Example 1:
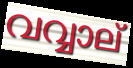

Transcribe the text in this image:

വവ്വാല്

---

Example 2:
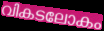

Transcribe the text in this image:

വികടലോകം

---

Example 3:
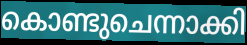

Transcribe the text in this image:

കൊണ്ടുചെന്നാക്കി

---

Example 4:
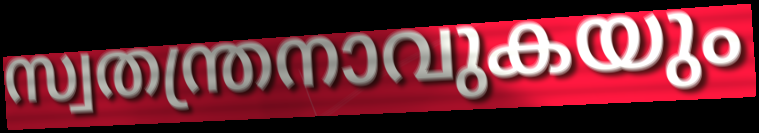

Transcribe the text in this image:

സ്വതന്ത്രനാവുകയും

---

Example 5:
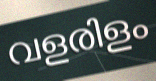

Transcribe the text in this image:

വളരിളം